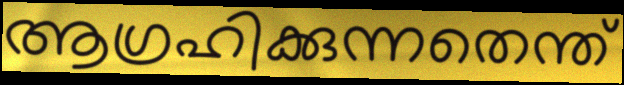
ആഗ്രഹിക്കുന്നതെന്ത്